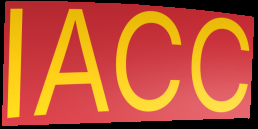
IACC